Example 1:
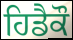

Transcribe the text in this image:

ਹਿਡੈਕੌ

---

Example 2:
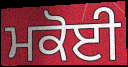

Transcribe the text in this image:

ਮਕੋਈ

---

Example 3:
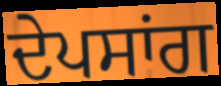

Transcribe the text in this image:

ਦੇਪਸਾਂਗ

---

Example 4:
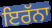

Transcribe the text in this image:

ਇਰੱਨਾ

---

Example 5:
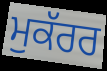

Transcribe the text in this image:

ਮੁਕੱਰਰ